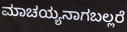
ಮಾಚಯ್ಯನಾಗಬಲ್ಲರೆ